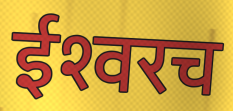
ईश्वरच